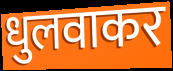
धुलवाकर